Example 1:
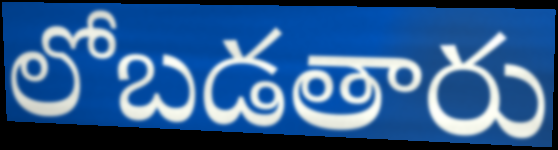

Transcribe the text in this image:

లోబడతారు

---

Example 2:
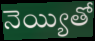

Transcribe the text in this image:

నెయ్యితో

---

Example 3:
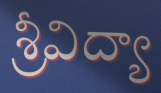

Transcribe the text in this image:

శ్రీవిద్యా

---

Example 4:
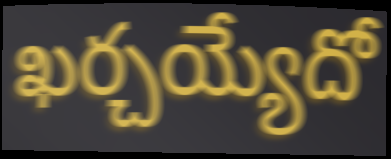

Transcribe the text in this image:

ఖర్చయ్యేదో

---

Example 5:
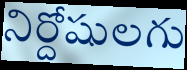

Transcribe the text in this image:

నిర్దోషులగు